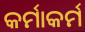
କର୍ମାକର୍ମ